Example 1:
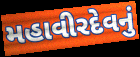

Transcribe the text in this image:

મહાવીરદેવનું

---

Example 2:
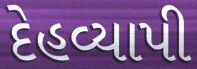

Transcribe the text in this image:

દેહવ્યાપી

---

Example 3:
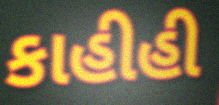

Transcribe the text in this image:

કાહીહી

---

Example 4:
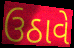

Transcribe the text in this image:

ઉઠાવે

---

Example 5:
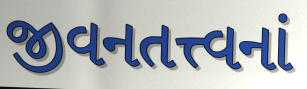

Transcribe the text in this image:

જીવનતત્ત્વનાં